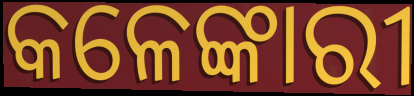
କଳେଙ୍କାରୀ